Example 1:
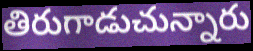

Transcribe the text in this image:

తిరుగాడుచున్నారు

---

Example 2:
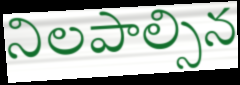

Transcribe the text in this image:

నిలపాల్సిన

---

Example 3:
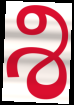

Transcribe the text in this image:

శి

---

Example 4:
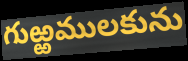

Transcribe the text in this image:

గుఱ్ఱములకును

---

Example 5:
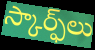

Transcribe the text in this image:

స్కార్ఫ్‌లు